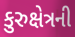
કુરુક્ષેત્રની